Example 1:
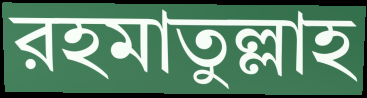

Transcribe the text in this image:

রহমাতুল্লাহ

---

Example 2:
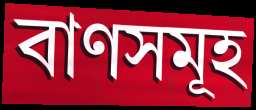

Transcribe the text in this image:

বাণসমূহ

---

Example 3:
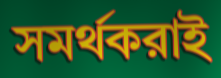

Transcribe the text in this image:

সমর্থকরাই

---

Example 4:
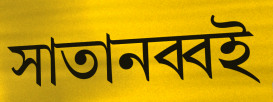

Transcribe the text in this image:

সাতানব্বই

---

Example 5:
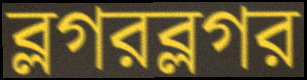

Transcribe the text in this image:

ব্লগরব্লগর